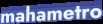
mahametro